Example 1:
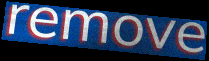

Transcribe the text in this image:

remove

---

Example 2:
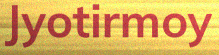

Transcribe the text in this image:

Jyotirmoy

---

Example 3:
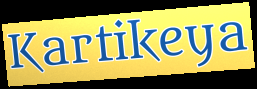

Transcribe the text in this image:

Kartikeya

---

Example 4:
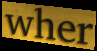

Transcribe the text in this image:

wher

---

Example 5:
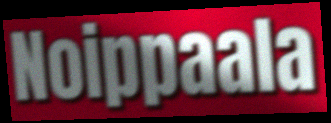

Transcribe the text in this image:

Noippaala